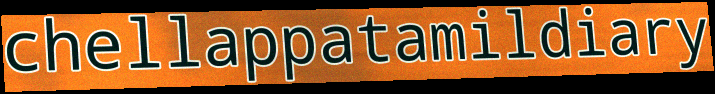
chellappatamildiary